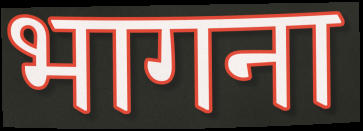
भागना